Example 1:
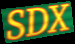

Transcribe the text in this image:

SDX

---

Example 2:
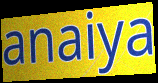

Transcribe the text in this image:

anaiya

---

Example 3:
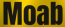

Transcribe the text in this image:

Moab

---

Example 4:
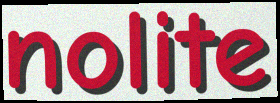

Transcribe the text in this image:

nolite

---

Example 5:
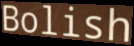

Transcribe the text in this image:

Bolish